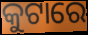
କୁଟାରେ